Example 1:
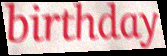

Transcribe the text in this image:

birthday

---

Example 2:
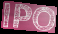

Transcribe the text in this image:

IPO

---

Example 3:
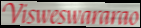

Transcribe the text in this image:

Visweswararao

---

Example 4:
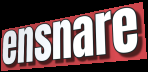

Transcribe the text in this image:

ensnare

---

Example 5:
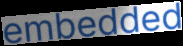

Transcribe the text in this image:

embedded